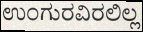
ಉಂಗುರವಿರಲಿಲ್ಲ